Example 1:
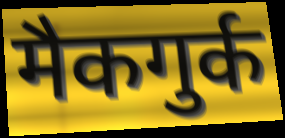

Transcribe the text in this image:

मैकगुर्क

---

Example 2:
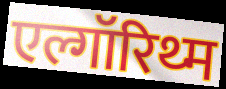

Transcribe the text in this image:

एल्गॉरिथ्म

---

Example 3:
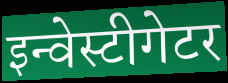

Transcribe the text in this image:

इन्वेस्टीगेटर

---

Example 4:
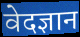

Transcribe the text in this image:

वेदज्ञान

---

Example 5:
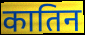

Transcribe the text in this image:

कातिन